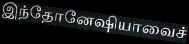
இந்தோனேஷியாவைச்